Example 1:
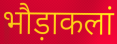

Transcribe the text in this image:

भौड़ाकलां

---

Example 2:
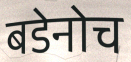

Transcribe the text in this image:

बडेनोच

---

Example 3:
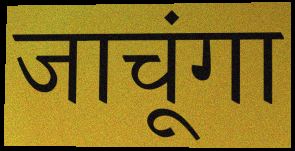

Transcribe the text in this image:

जाचूंगा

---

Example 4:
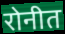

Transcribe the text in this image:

रोनीत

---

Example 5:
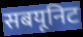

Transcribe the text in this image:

सबयूनिट